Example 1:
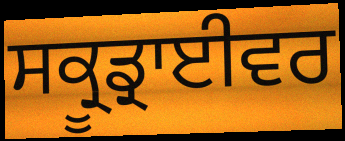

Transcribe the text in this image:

ਸਕ੍ਰੂਡ੍ਰਾਈਵਰ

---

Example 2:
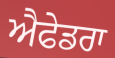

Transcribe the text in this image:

ਐਫੇਡਰਾ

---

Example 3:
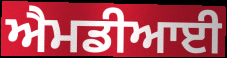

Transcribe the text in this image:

ਐਮਡੀਆਈ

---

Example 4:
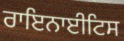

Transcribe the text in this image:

ਰਾਇਨਾਈਟਿਸ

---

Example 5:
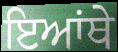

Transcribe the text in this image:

ਇਆਂਥੇ